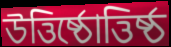
উত্তিষ্ঠোত্তিষ্ঠ